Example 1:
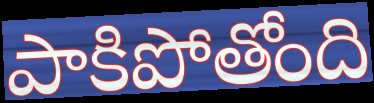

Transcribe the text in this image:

పాకిపోతోంది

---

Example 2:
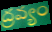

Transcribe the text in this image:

ద్రవ్యం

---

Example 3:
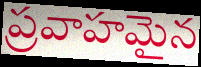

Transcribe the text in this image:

ప్రవాహమైన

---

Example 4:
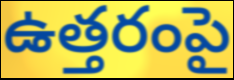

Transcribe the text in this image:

ఉత్తరంపై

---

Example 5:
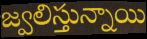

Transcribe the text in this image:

జ్వలిస్తున్నాయి